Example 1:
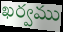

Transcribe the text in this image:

ఖర్వము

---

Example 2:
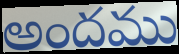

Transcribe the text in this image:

అందము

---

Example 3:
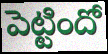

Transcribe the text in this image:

పెట్టిందో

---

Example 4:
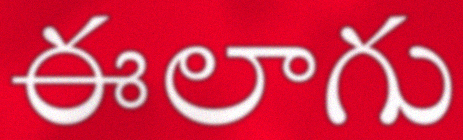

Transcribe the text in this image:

ఈలాగు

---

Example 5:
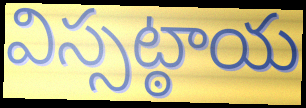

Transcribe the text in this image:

విస్సట్ఠాయ